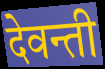
देवन्ती